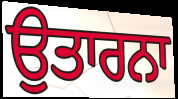
ਉਤਾਰਨਾ